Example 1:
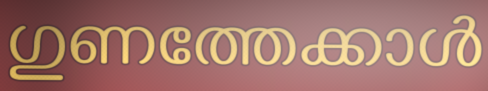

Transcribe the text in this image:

ഗുണത്തേക്കാൾ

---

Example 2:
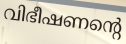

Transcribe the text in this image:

വിഭീഷണന്റെ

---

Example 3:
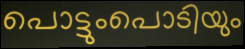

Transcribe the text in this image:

പൊട്ടുംപൊടിയും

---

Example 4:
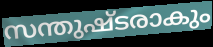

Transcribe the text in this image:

സന്തുഷ്ടരാകും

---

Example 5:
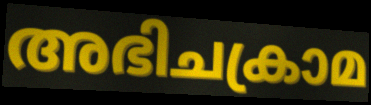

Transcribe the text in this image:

അഭിചക്രാമ